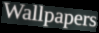
Wallpapers